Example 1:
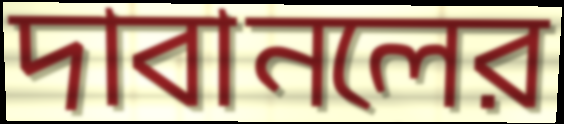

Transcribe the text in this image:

দাবানলের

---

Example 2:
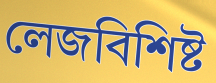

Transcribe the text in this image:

লেজবিশিষ্ট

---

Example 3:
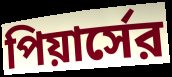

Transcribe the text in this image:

পিয়ার্সের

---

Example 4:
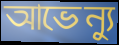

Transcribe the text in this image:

আভেন্যু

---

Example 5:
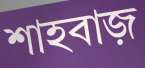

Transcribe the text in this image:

শাহবাজ়